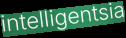
intelligentsia